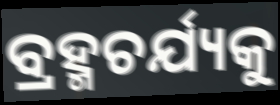
ବ୍ରହ୍ମଚର୍ଯ୍ୟକୁ